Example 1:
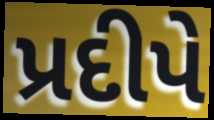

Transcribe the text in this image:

પ્રદીપે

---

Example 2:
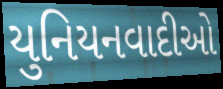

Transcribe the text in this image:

યુનિયનવાદીઓ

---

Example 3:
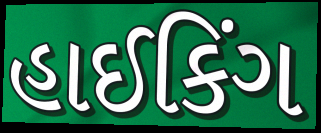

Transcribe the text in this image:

હાઈકિંગ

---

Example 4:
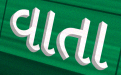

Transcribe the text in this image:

વાતા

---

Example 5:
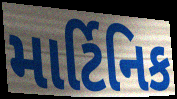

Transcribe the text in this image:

માર્ટિનિક